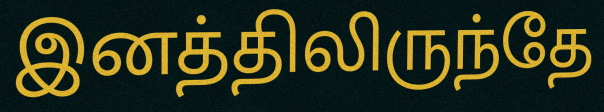
இனத்திலிருந்தே